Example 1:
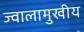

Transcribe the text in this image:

ज्वालामुखीय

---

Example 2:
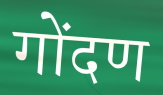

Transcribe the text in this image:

गोंदण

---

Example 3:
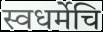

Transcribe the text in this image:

स्वधर्मेचि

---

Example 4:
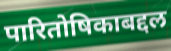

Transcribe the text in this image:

पारितोषिकाबद्दल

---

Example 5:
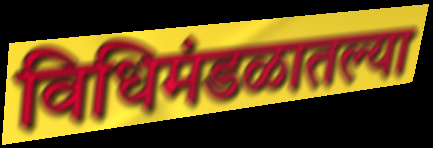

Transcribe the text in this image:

विधिमंडळातल्या